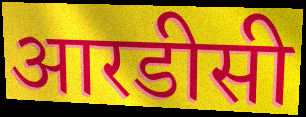
आरडीसी